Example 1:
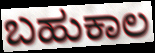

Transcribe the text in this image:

ಬಹುಕಾಲ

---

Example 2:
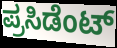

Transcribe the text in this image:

ಪ್ರಸಿಡೆಂಟ್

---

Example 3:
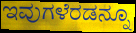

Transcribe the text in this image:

ಇವುಗಳೆರಡನ್ನೂ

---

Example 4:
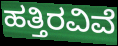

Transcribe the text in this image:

ಹತ್ತಿರವಿವೆ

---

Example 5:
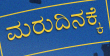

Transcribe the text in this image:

ಮರುದಿನಕ್ಕೆ